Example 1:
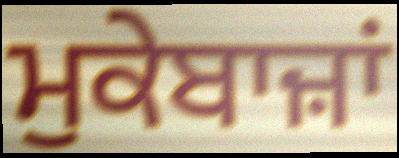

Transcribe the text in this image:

ਮੁਕੇਬਾਜ਼ਾਂ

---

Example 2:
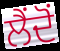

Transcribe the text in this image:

ਲੈਂਦੋਂ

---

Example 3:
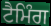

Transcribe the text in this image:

ਟੈਮਿੰਗ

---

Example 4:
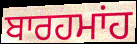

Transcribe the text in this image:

ਬਾਰਹਮਾਂਹ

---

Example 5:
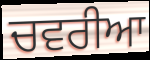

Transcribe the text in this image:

ਚਵਰੀਆ